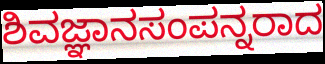
ಶಿವಜ್ಞಾನಸಂಪನ್ನರಾದ